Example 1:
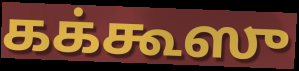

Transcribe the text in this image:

கக்கூஸு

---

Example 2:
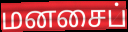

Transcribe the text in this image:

மனசைப்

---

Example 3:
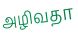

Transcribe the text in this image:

அழிவதா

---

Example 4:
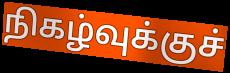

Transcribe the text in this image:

நிகழ்வுக்குச்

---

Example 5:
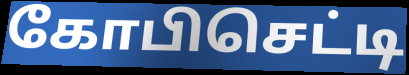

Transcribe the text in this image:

கோபிசெட்டி